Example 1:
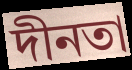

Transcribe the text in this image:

দীনতা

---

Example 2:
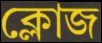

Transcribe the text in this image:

ক্লোজ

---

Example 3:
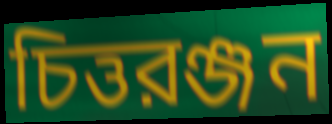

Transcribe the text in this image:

চিত্তরঞ্জন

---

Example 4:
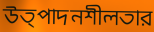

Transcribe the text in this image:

উত্পাদনশীলতার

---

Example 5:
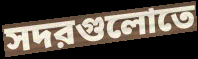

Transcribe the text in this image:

সদরগুলোতে